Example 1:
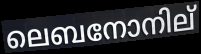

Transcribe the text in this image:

ലെബനോനില്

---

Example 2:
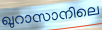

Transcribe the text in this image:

ഖുറാസാനിലെ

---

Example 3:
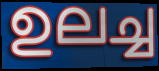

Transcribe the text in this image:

ഉലച്ച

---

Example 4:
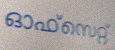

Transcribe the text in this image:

ഓഫ്സെറ്റ്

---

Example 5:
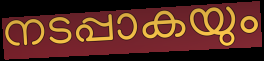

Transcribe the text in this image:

നടപ്പാകയും